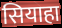
सियाहा